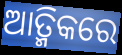
ଆତ୍ମିକରେ